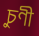
চুণী